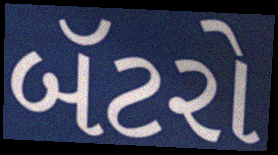
બૅટરો